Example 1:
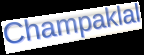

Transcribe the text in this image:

Champaklal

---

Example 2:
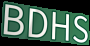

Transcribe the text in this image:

BDHS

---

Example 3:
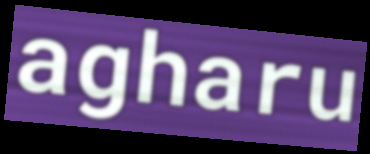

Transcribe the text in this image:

agharu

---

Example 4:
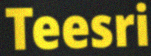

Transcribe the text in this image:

Teesri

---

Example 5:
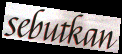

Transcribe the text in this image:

sebutkan